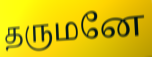
தருமனே